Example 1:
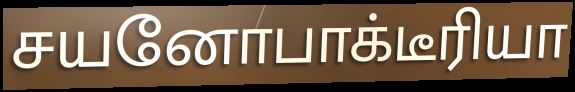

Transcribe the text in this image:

சயனோபாக்டீரியா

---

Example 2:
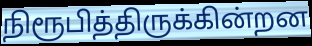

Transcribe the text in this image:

நிரூபித்திருக்கின்றன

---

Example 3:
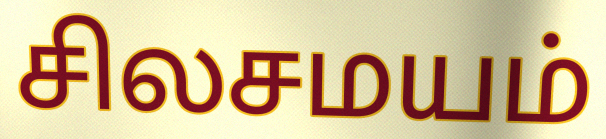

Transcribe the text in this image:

சிலசமயம்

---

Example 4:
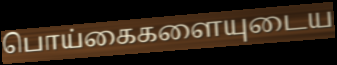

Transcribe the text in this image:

பொய்கைகளையுடைய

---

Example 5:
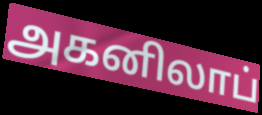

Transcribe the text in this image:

அகனிலாப்